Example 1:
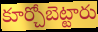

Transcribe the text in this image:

కూర్చోబెట్టారు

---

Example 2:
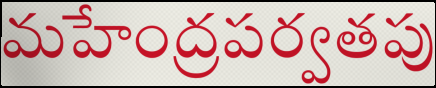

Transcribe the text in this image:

మహేంద్రపర్వతపు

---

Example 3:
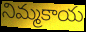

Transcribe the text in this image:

నిమ్మకాయ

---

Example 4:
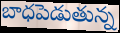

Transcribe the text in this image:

బాధపెడుతున్న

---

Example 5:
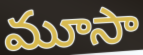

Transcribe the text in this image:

మూసా